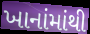
ખાનાંમાંથી